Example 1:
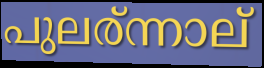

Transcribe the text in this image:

പുലര്ന്നാല്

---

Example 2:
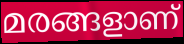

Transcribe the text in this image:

മരങ്ങളാണ്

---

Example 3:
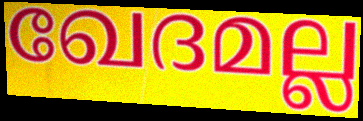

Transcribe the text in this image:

ഖേദമല്ല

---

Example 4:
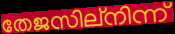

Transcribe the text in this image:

തേജസില്നിന്ന്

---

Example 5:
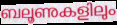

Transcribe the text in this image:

ബലൂണുകളിലും